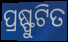
ପ୍ରଷ୍ଫୁଟିତ